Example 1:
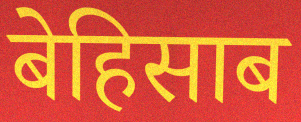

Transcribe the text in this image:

बेहिसाब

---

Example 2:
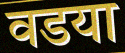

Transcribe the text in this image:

वडया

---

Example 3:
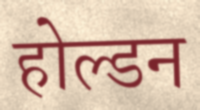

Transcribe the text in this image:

होल्डन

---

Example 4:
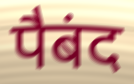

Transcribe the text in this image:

पैबंद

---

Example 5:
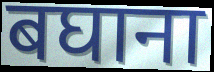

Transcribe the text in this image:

बघाना